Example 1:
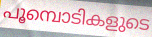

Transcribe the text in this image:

പൂമ്പൊടികളുടെ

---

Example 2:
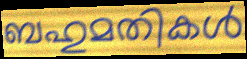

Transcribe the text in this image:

ബഹുമതികൾ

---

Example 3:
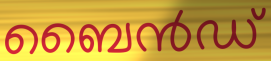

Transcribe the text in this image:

ബൈൻഡ്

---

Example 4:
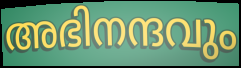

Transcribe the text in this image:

അഭിനന്ദവും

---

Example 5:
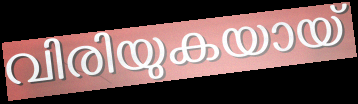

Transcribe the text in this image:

വിരിയുകയായ്